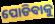
ପୋଡିବାକୁ